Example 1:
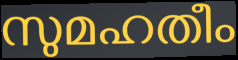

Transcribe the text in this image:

സുമഹതീം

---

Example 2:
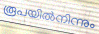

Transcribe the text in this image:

രൂപയിൽനിന്നും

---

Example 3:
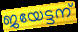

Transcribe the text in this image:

ജയേട്ടന്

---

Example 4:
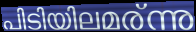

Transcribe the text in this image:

പിടിയിലമര്ന്നു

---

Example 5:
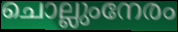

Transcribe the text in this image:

ചൊല്ലുംനേരം